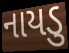
નાયડુ